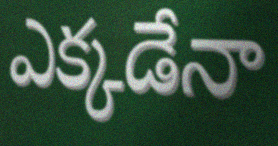
ఎక్కడేనా